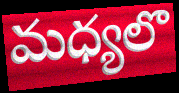
మధ్యలొ